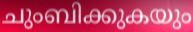
ചുംബിക്കുകയും